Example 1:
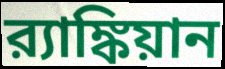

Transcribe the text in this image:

র‍্যাঙ্কিয়ান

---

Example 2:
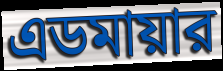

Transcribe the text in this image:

এডমায়ার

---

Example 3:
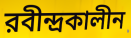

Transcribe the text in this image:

রবীন্দ্রকালীন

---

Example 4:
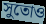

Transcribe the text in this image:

সুতোও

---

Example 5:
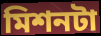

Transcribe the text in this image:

মিশনটা